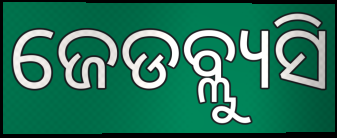
ଜେଡବ୍ଲ୍ୟୁସି